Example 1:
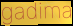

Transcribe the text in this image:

gadima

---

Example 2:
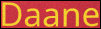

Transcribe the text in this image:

Daane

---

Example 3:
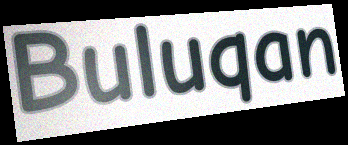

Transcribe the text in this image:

Buluqan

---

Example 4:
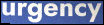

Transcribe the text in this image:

urgency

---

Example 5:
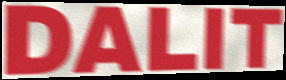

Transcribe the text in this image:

DALIT